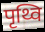
पृथ्वि